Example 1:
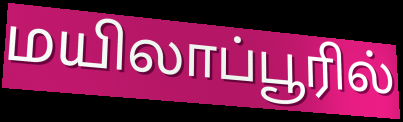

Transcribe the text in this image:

மயிலாப்பூரில்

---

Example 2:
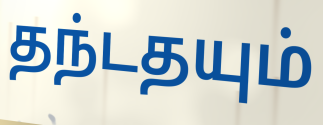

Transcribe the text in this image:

தந்டதயும்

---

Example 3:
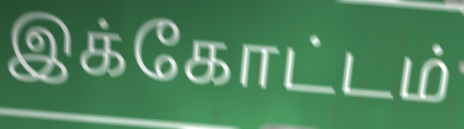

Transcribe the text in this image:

இக்கோட்டம்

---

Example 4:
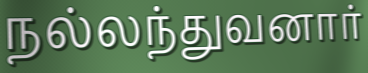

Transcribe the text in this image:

நல்லந்துவனார்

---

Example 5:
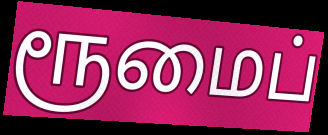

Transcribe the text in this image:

ரூமைப்